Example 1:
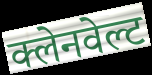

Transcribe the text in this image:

क्लेनवेल्ट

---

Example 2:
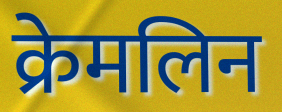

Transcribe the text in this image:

क्रेमलिन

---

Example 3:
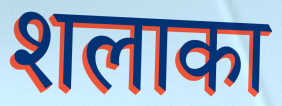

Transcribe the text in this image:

शलाका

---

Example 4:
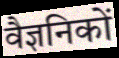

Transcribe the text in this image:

वैज्ञनिकों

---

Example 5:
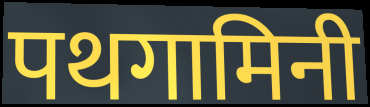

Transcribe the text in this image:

पथगामिनी